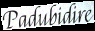
Padubidire